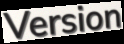
Version